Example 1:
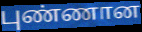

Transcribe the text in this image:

புண்ணான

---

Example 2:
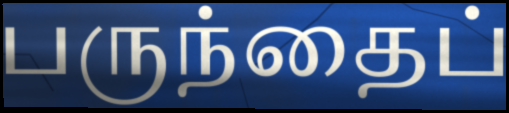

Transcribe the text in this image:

பருந்தைப்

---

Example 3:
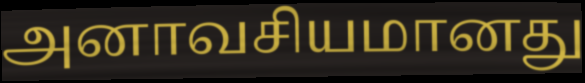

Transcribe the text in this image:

அனாவசியமானது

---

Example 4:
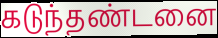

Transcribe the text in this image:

கடுந்தண்டனை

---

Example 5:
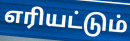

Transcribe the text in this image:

எரியட்டும்